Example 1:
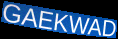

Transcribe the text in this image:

GAEKWAD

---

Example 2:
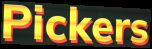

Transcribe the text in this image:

Pickers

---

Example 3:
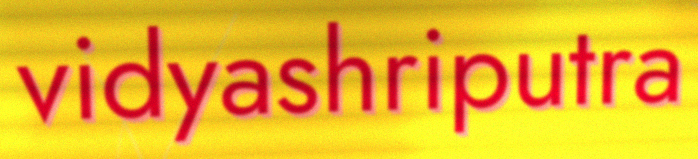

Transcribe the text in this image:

vidyashriputra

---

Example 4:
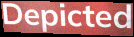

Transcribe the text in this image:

Depicted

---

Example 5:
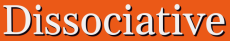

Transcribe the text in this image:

Dissociative